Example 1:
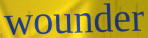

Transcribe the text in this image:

wounder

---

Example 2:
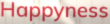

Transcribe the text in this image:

Happyness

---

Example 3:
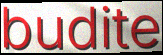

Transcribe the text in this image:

budite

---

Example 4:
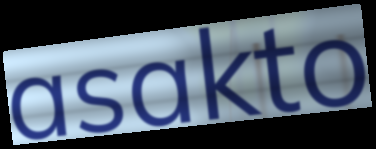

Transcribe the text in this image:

asakto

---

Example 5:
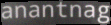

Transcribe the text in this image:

anantnag